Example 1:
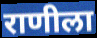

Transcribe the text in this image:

राणीला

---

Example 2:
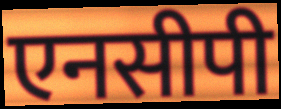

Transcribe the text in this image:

एनसीपी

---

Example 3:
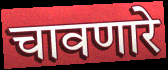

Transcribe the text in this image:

चावणारे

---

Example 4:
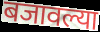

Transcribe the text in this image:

बजावल्या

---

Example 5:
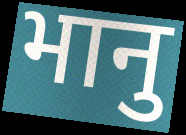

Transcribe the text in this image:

भानु